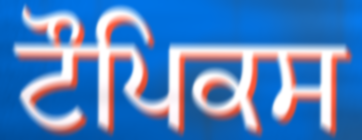
ਟੌਪਿਕਸ